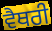
ਵੈਥਰੀ